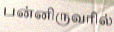
பன்னிருவரில்